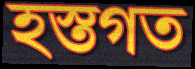
হস্তগত